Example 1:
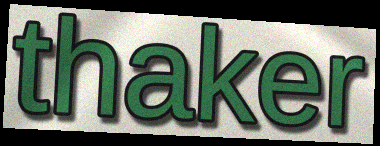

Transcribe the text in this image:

thaker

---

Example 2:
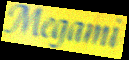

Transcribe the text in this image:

Megami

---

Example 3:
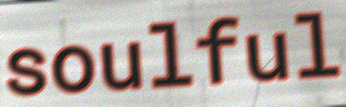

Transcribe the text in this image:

soulful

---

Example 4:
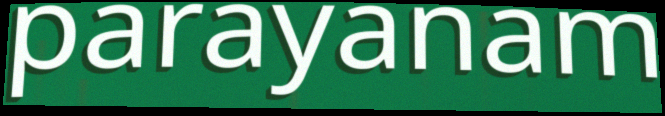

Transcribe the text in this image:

parayanam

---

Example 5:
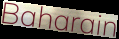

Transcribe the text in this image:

Baharain